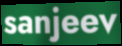
sanjeev